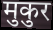
मुकुर